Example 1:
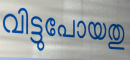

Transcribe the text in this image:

വിട്ടുപോയതു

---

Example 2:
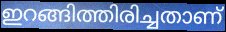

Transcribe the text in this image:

ഇറങ്ങിത്തിരിച്ചതാണ്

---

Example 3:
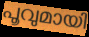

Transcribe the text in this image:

പൂവുമായി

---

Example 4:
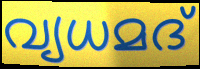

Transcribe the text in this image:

വ്യധമദ്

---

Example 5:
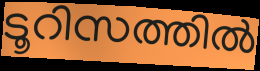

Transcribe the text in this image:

ടൂറിസത്തിൽ